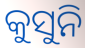
କୁସୁନି